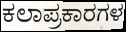
ಕಲಾಪ್ರಕಾರಗಳ